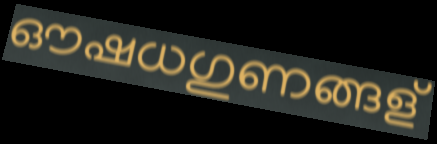
ഔഷധഗുണങ്ങള്